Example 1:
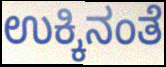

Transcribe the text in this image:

ಉಕ್ಕಿನಂತೆ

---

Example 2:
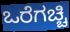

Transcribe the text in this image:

ಒರೆಗಚ್ಚಿ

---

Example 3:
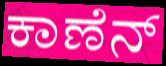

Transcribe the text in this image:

ಕಾಣೆನ್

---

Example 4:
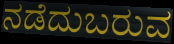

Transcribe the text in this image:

ನಡೆದುಬರುವ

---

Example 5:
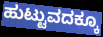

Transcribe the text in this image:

ಹುಟ್ಟುವದಕ್ಕೂ